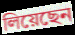
লিয়েছেন